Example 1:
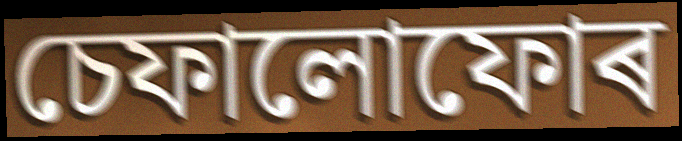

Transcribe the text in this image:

চেফালোফোৰ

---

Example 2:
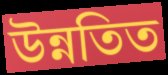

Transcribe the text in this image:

উন্নতিত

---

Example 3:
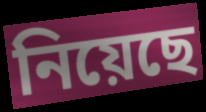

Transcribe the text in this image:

নিয়েছে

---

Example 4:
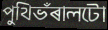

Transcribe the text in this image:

পুথিভঁৰালটো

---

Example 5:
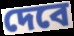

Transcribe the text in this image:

দেবে